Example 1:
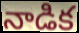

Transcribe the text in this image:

నాడిక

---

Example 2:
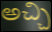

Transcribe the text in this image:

అచ్చి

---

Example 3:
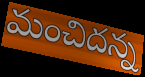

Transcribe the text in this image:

మంచిదన్న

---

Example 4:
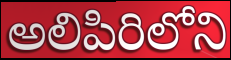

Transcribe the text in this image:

అలిపిరిలోని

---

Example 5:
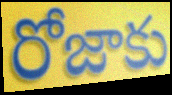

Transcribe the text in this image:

రోజాకు